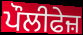
ਪੌਲੀਫੇਜ਼